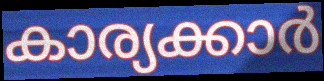
കാര്യക്കാർ